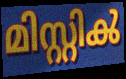
മിസ്റ്റിൿ